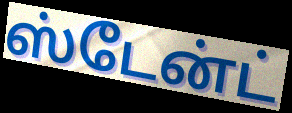
ஸ்டேன்ட்